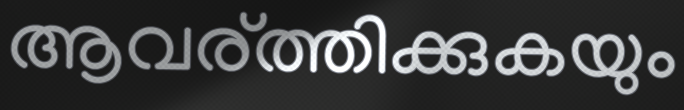
ആവര്ത്തിക്കുകയും